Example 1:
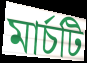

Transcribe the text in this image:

মার্চটি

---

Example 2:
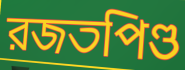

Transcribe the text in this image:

রজতপিণ্ড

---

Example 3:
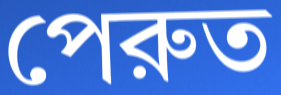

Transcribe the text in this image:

পেরুত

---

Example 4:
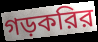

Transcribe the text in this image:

গড়করির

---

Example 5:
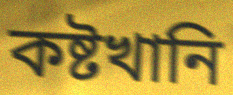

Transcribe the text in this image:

কষ্টখানি